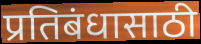
प्रतिबंधासाठी